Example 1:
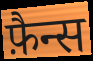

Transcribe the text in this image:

फ़ैन्स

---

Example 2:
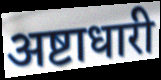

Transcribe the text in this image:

अष्टाधारी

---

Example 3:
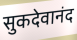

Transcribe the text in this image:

सुकदेवानंद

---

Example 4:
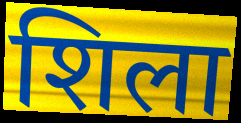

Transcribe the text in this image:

शिला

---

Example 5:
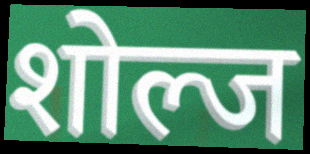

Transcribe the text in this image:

शोल्ज